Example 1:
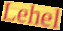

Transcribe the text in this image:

Lehel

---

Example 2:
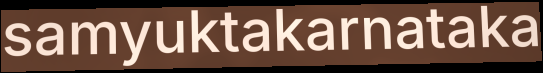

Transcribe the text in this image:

samyuktakarnataka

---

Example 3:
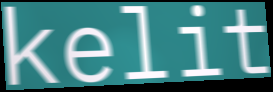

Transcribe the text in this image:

kelit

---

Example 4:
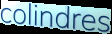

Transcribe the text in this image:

colindres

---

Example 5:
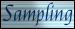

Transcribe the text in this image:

Sampling